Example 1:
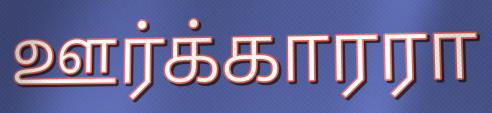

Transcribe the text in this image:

ஊர்க்காரரா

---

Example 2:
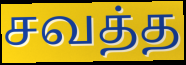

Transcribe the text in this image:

சவத்த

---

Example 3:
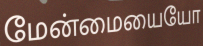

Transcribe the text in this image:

மேன்மையையோ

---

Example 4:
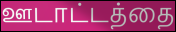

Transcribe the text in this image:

ஊடாட்டத்தை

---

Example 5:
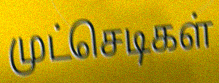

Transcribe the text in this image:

முட்செடிகள்